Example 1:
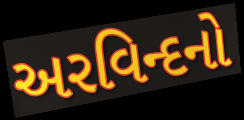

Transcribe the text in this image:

અરવિન્દનો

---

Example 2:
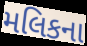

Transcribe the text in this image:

મલિકના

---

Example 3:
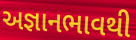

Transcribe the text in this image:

અજ્ઞાનભાવથી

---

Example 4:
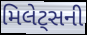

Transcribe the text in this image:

મિલેટ્સની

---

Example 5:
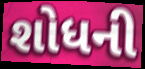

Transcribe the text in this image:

શોધની